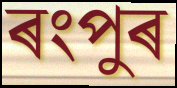
ৰংপুৰ